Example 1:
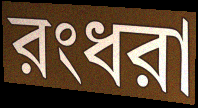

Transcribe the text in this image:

রংধরা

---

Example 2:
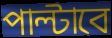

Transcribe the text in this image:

পাল্টাবে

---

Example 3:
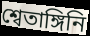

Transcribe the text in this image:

শ্বেতাঙ্গিনি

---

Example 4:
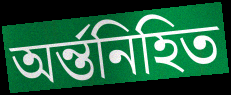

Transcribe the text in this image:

অর্ন্তনিহিত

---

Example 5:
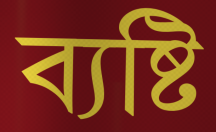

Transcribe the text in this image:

ব্যষ্টি